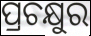
ପ୍ରଚକ୍ଷୁର